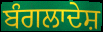
ਬੰਗਲਾਦੇਸ਼